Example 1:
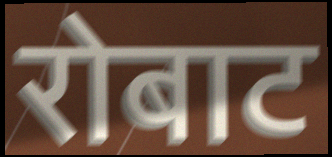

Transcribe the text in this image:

रोबाट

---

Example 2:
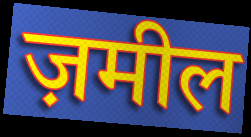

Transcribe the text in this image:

ज़मील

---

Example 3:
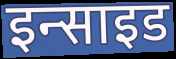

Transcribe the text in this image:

इन्साइड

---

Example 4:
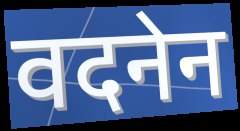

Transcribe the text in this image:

वदनेन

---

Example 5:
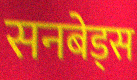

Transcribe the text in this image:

सनबेड्स